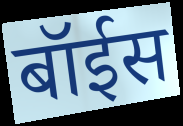
बॉईस